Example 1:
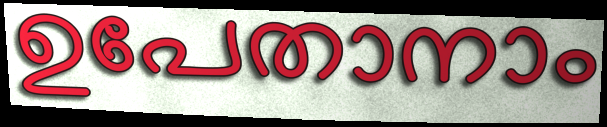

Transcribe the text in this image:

ഉപേതാനാം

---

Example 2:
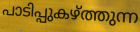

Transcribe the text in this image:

പാടിപ്പുകഴ്ത്തുന്ന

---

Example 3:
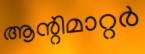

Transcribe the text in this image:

ആന്റിമാറ്റർ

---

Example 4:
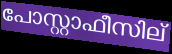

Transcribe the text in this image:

പോസ്റ്റാഫീസില്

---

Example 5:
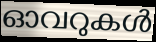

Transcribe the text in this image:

ഓവറുകൾ